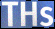
THs